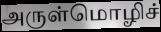
அருள்மொழிச்